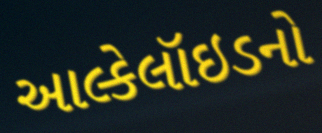
આલ્કેલૉઇડનો